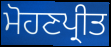
ਮੋਹਣਪ੍ਰੀਤ